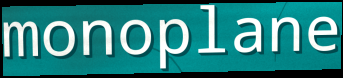
monoplane